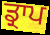
ਡ੍ਰਾਪ